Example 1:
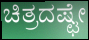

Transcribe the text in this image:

ಚಿತ್ರದಷ್ಟೇ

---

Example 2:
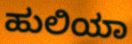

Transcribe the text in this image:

ಹುಲಿಯಾ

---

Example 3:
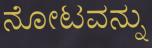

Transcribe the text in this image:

ನೋಟವನ್ನು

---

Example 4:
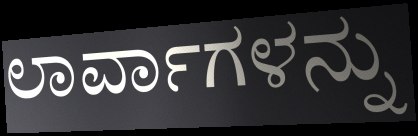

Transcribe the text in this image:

ಲಾರ್ವಾಗಳನ್ನು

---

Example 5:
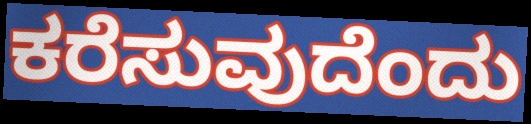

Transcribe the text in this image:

ಕರೆಸುವುದೆಂದು